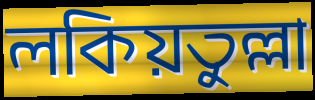
লকিয়তুল্লা